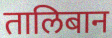
तालिबान